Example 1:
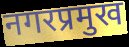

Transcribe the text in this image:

नगरप्रमुख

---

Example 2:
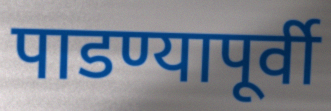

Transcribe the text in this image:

पाडण्यापूर्वी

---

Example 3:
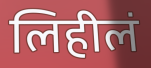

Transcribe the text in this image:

लिहीलं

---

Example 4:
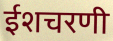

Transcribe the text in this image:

ईशचरणी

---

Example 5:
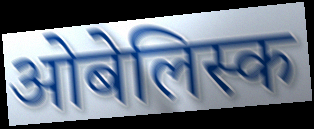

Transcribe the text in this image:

ओबेलिस्क